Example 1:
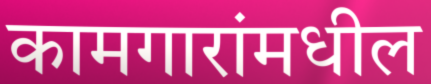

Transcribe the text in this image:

कामगारांमधील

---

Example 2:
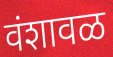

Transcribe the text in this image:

वंशावळ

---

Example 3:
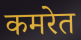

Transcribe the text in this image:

कमरेत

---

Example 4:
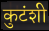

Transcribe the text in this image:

कुटंशी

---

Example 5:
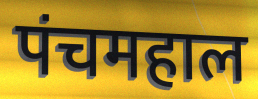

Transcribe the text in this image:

पंचमहाल